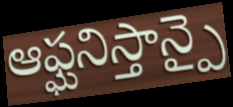
ఆఫ్ఘనిస్తాన్పై